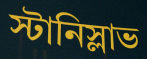
স্টানিস্লাভ